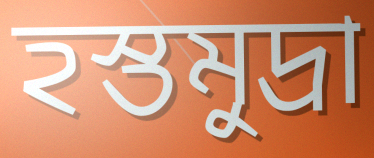
হস্তমুদ্রা